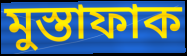
মুস্তাফাক